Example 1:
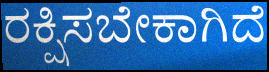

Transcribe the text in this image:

ರಕ್ಷಿಸಬೇಕಾಗಿದೆ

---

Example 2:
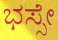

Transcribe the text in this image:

ಭಸ್ಸೇ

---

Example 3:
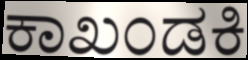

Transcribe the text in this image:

ಕಾಖಂಡಕಿ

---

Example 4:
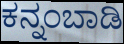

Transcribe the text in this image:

ಕನ್ನಂಬಾಡಿ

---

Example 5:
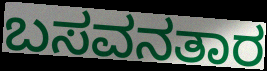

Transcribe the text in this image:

ಬಸವನತಾರ